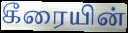
கீரையின்